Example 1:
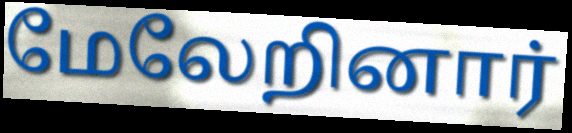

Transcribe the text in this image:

மேலேறினார்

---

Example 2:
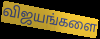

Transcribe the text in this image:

விஜயங்களை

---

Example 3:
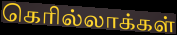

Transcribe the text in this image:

கெரில்லாக்கள்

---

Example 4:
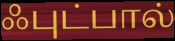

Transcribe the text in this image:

ஃபுட்பால்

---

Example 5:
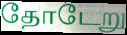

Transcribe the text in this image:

தோடேறு